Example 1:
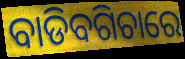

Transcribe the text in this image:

ବାଡିବଗିଚାରେ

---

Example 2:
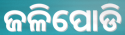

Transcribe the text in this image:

ଜଳିପୋଡି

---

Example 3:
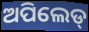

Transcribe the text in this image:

ଅପିଲେଡ୍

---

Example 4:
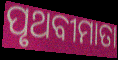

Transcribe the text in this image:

ପୃଥବୀମାତା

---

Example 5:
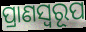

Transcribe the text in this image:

ପ୍ରାଣସ୍ୱରୂପ